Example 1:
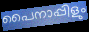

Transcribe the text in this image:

പൈനാപ്പിളും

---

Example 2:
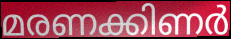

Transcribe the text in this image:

മരണക്കിണർ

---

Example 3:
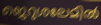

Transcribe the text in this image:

ജെറുശലേമിൽ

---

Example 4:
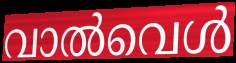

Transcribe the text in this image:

വാൽവെൾ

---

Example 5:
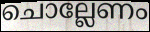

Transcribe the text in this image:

ചൊല്ലേണം